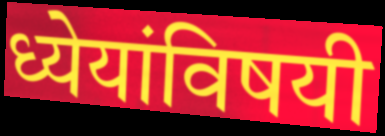
ध्येयांविषयी